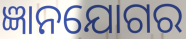
ଜ୍ଞାନଯୋଗର